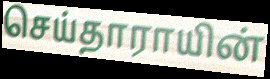
செய்தாராயின்